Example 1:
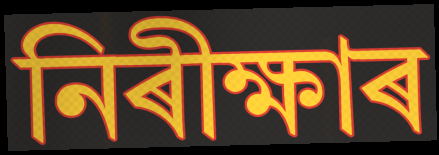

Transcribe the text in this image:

নিৰীক্ষাৰ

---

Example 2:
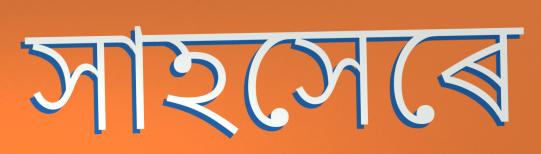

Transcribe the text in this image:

সাহসেৰে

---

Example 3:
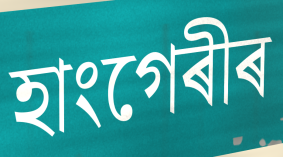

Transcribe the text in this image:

হাংগেৰীৰ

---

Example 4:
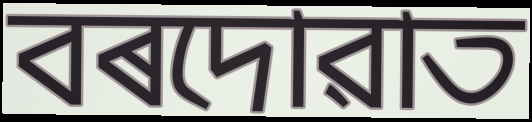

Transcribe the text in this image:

বৰদোৱাত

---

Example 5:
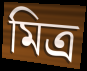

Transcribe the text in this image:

মিত্ৰ